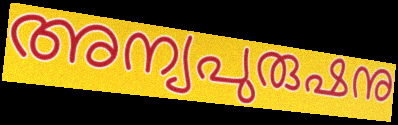
അന്യപുരുഷനു